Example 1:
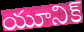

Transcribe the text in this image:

యూనిక్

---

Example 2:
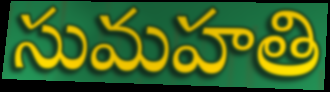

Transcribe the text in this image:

సుమహతి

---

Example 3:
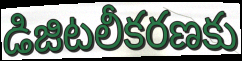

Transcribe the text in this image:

డిజిటలీకరణకు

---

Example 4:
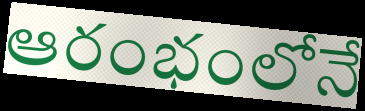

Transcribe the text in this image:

ఆరంభంలోనే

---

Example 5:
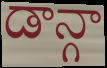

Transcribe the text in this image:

డాన్గా